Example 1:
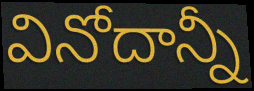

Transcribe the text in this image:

వినోదాన్నీ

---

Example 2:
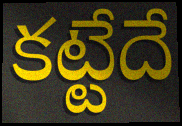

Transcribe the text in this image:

కట్టేదే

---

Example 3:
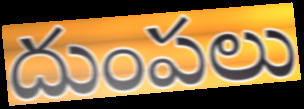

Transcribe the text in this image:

దుంపలు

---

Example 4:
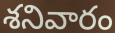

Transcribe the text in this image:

శనివారం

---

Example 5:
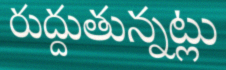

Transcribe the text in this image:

రుద్దుతున్నట్లు